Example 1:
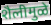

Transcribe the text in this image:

शैलीमुळे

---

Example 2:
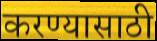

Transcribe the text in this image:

करण्यासाठी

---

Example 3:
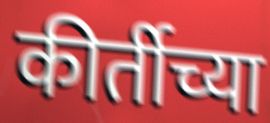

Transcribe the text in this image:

कीर्तीच्या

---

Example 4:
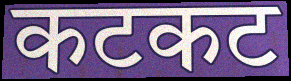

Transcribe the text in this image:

कटकट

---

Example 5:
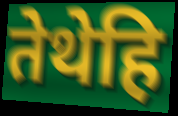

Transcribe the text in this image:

तेथेहि